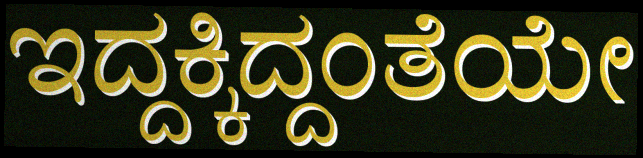
ಇದ್ದಕ್ಕಿದ್ದಂತೆಯೇ